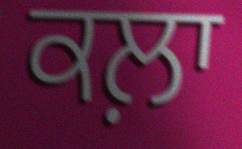
ਕਲ਼ਾ